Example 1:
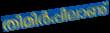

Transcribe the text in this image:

തിമിർപ്പിലാണു്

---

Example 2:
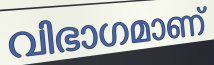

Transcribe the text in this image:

വിഭാഗമാണ്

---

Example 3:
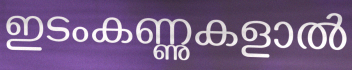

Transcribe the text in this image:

ഇടംകണ്ണുകളാൽ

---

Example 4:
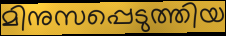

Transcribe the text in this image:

മിനുസപ്പെടുത്തിയ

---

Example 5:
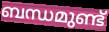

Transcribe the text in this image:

ബന്ധമുണ്ട്